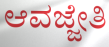
ಆವಜ್ಜೇತಿ